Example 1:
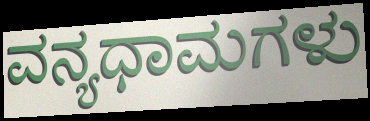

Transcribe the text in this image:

ವನ್ಯಧಾಮಗಳು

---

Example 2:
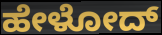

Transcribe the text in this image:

ಹೇಳೋದ್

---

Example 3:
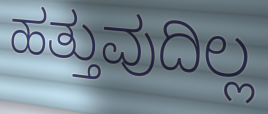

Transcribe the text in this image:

ಹತ್ತುವುದಿಲ್ಲ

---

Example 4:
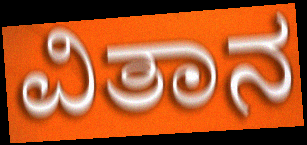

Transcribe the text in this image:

ವಿತಾನ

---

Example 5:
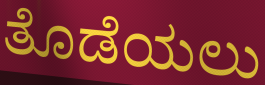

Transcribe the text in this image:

ತೊಡೆಯಲು